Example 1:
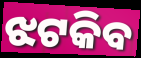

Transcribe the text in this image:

ଝଟକିବ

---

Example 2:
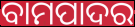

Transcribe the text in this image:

ବାମପାଦର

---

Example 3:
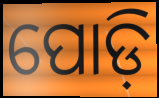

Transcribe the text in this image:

ପୋଡ଼ି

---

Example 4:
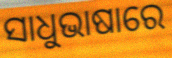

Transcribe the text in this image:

ସାଧୁଭାଷାରେ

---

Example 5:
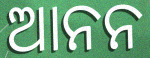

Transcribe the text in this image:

ଆନନ